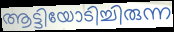
ആട്ടിയോടിച്ചിരുന്ന